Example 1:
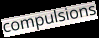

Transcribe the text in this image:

compulsions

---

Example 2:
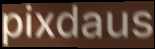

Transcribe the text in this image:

pixdaus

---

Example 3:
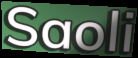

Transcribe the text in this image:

Saoli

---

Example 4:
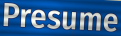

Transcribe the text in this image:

Presume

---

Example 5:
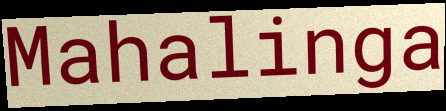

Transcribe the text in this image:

Mahalinga